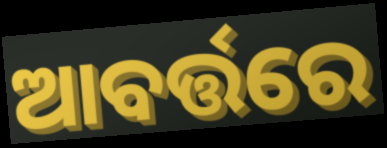
ଆବର୍ତ୍ତରେ